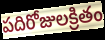
పదిరోజులక్రితం